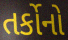
તર્કોનો